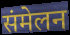
संमेलन